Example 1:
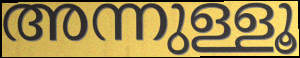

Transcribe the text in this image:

അന്നുള്ളൂ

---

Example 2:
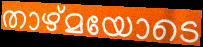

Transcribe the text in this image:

താഴ്മയോടെ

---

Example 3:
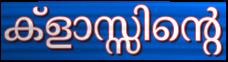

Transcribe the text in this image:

ക്ളാസ്സിന്റെ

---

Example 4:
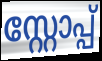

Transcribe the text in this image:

സ്റ്റോപ്പ്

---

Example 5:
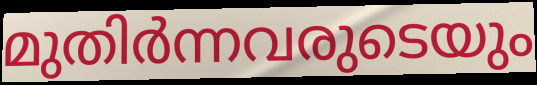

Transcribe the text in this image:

മുതിർന്നവരുടെയും